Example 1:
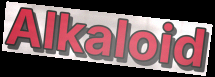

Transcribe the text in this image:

Alkaloid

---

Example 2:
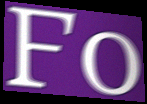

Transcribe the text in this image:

Fo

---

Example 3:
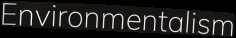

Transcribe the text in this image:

Environmentalism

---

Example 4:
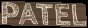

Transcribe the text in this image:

PATEL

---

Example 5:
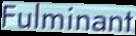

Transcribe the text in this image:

Fulminant